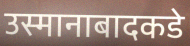
उस्मानाबादकडे